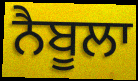
ਨੈਬੂਲਾ